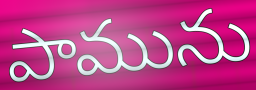
పామును